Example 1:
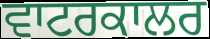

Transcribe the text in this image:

ਵਾਟਰਕਾਲਰ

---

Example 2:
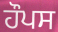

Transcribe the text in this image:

ਹੌਪਸ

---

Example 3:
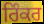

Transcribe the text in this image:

ਰਿੰਕਰ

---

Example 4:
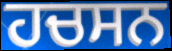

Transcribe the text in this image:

ਹਚਸਨ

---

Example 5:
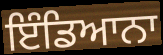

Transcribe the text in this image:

ਇੰਡਿਆਨਾ